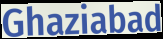
Ghaziabad